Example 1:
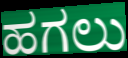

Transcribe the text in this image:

ಹಗಲು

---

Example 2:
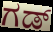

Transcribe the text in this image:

ಗಡ್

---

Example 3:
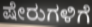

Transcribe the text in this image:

ಷೇರುಗಳಿಗೆ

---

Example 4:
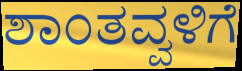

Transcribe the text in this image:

ಶಾಂತವ್ವಳಿಗೆ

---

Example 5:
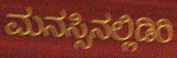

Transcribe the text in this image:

ಮನಸ್ಸಿನಲ್ಲಿಡಿರಿ